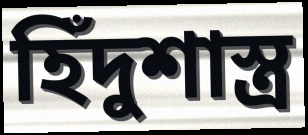
হিঁদুশাস্ত্র